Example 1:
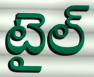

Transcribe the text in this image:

టైల్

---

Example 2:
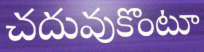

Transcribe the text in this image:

చదువుకొంటూ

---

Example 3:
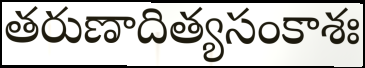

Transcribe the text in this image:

తరుణాదిత్యసంకాశః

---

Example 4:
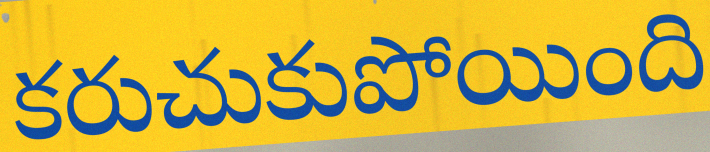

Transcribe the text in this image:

కరుచుకుపోయింది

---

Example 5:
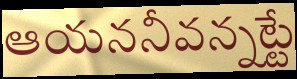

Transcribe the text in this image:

ఆయననీవన్నట్టే